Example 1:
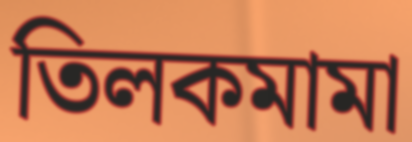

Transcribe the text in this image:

তিলকমামা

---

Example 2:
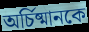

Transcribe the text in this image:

অর্চিষ্মানকে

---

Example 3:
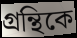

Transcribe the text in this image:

গ্রন্থিকে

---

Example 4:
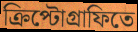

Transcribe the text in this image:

ক্রিপ্টোগ্রাফিতে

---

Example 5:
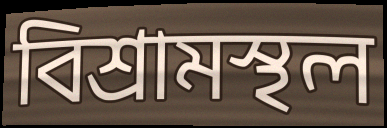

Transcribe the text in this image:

বিশ্রামস্থল